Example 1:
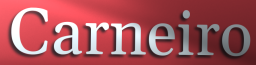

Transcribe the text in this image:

Carneiro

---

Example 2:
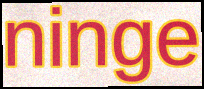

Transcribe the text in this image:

ninge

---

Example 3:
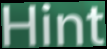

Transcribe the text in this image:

Hint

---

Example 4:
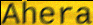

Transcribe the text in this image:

Ahera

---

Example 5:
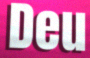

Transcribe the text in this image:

Deu